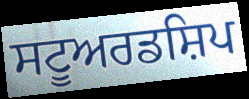
ਸਟੂਅਰਡਸ਼ਿਪ